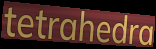
tetrahedra